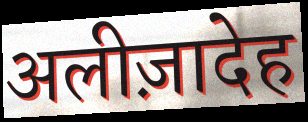
अलीज़ादेह